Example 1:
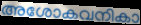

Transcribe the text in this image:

അശോകവനികാ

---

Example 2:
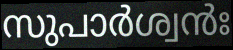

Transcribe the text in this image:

സുപാർശ്വൻഃ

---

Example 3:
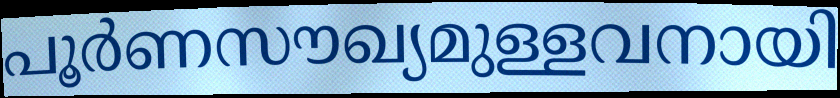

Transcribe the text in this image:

പൂർണസൗഖ്യമുള്ളവനായി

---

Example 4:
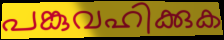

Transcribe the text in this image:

പങ്കുവഹിക്കുക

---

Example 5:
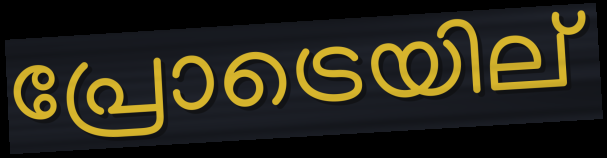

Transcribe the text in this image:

പ്രോട്രെയില്